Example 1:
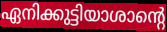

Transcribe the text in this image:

ഏനിക്കുട്ടിയാശാന്റെ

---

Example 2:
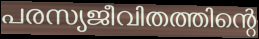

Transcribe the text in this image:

പരസ്യജീവിതത്തിന്റെ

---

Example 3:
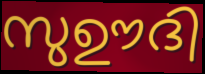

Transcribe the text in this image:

സുഊദി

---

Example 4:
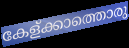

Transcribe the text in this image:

കേള്ക്കാത്തൊരു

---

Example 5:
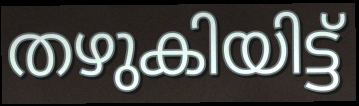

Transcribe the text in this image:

തഴുകിയിട്ട്